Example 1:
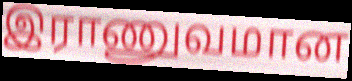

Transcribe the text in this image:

இராணுவமான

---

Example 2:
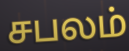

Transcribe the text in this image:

சபலம்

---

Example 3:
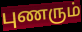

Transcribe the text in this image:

புணரும்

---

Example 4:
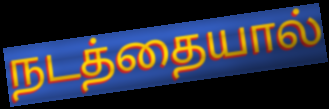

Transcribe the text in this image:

நடத்தையால்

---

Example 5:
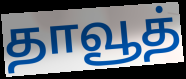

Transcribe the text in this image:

தாவூத்